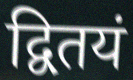
द्वितयं